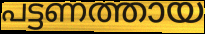
പട്ടണത്തായ